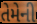
તેમેની